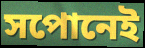
সপোনেই